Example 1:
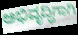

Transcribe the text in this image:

ಅಭಿವೃದ್ಧಿಗಾಗಿ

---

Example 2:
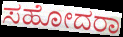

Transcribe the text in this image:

ಸಹೋದರಾ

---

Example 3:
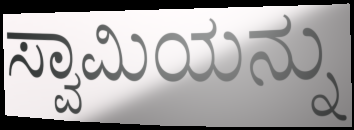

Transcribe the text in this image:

ಸ್ವಾಮಿಯನ್ನು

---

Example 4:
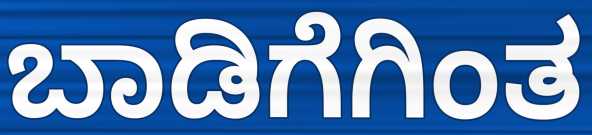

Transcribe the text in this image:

ಬಾಡಿಗೆಗಿಂತ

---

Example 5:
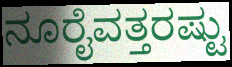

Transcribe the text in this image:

ನೂರೈವತ್ತರಷ್ಟು